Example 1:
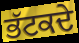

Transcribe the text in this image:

ਭੱਟਕਦੇ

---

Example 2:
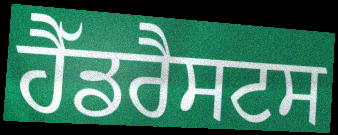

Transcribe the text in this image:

ਹੈੱਡਰੈਸਟਸ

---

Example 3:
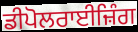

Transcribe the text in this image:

ਡੀਪੋਲਰਾਈਜ਼ਿੰਗ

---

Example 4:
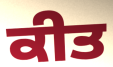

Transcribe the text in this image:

ਕੀਤ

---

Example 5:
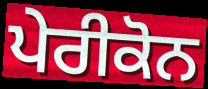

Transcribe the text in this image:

ਪੇਰੀਕੋਨ